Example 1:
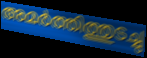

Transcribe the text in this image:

അമർത്തിത്തുടച്ചു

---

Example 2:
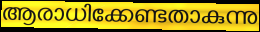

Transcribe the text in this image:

ആരാധിക്കേണ്ടതാകുന്നു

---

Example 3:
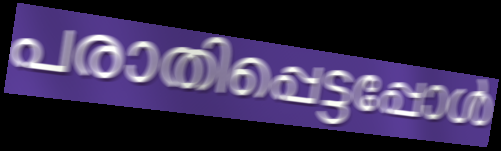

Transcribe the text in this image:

പരാതിപ്പെട്ടപ്പോൾ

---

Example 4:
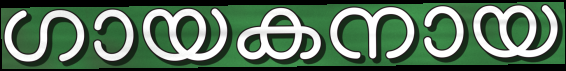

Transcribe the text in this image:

ഗായകനായ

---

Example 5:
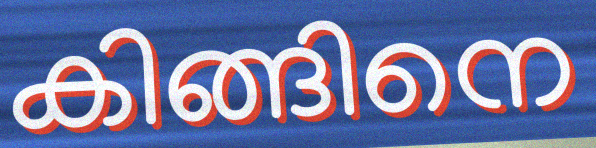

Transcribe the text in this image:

കിങ്ങിനെ